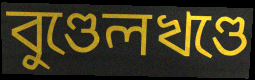
বুণ্ডেলখণ্ডে